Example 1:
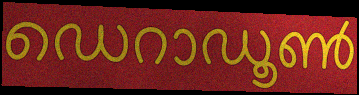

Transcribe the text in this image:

ഡെറാഡൂൺ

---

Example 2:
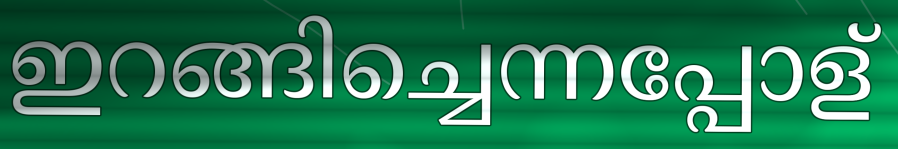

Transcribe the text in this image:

ഇറങ്ങിച്ചെന്നപ്പോള്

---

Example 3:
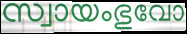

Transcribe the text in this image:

സ്വായംഭുവോ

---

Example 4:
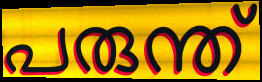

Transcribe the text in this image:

പരുന്ത്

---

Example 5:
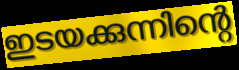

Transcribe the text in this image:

ഇടയക്കുന്നിന്റെ